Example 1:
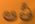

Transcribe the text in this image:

ఆతీ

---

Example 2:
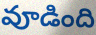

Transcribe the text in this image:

వూడింది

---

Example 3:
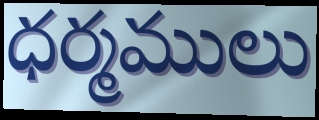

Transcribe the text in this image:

ధర్మములు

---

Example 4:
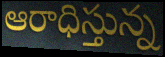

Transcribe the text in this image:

ఆరాధిస్తున్న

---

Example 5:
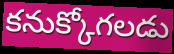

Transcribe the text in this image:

కనుక్కోగలడు